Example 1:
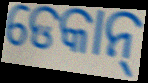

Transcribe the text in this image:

ଡେକାନ୍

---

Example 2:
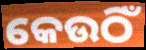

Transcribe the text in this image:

କେଉଠିଁ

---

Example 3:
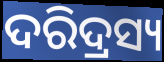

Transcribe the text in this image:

ଦରିଦ୍ରସ୍ୟ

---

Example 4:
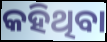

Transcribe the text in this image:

କହିଥିବା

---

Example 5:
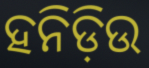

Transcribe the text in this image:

ହନିଡ଼ିଉ